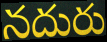
నదురు